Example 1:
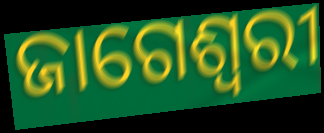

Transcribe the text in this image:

ଜାଗେଶ୍ୱରୀ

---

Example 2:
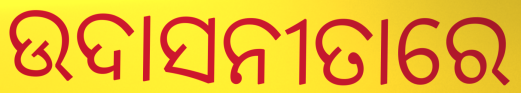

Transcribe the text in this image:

ଉଦାସନୀତାରେ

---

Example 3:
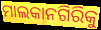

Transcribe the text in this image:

ମାଲକାନଗିରିକୁ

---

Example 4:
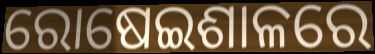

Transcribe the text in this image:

ରୋଷେଇଶାଳରେ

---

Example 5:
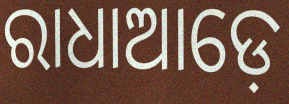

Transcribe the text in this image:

ରାଧାଆଡ଼େ